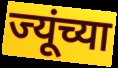
ज्यूंच्या